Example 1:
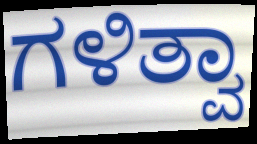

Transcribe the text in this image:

ಗಳಿತ್ವಾ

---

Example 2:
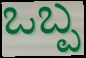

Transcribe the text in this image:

ಒಬ್ಪ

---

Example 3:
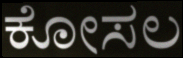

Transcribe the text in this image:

ಕೋಸಲ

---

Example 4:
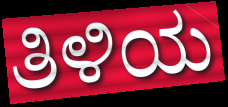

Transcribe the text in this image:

ತಿಳಿಯ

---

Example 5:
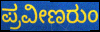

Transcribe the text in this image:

ಪ್ರವೀಣರುಂ